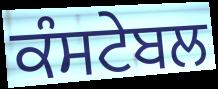
ਕੰਸਟੇਬਲ